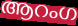
ആറംഗ